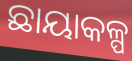
ଛାୟାକଳ୍ପ